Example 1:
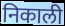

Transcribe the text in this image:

निकाली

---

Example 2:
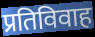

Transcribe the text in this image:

प्रतिविवाह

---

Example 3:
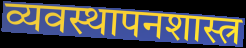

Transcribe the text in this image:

व्यवस्थापनशास्त्र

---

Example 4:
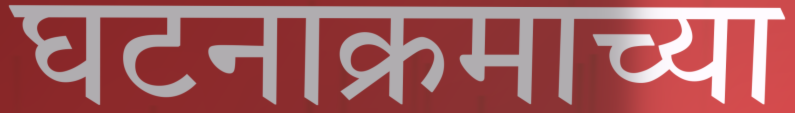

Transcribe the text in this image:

घटनाक्रमाच्या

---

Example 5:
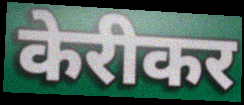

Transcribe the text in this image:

केरीकर